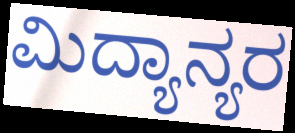
ಮಿದ್ಯಾನ್ಯರ